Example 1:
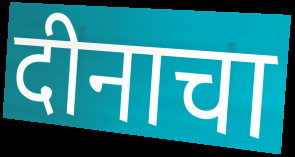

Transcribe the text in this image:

दीनाचा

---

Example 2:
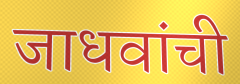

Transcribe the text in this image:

जाधवांची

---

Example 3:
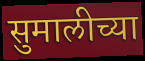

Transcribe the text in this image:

सुमालीच्या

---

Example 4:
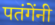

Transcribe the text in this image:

पतंगेंनी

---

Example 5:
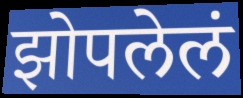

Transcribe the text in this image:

झोपलेलं